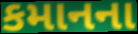
કમાનના